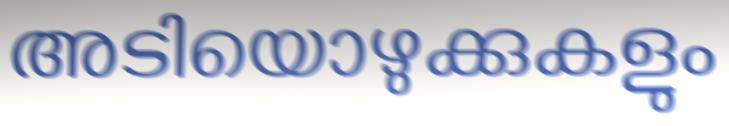
അടിയൊഴുക്കുകളും